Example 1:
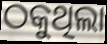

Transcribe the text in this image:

ଠକୁଥିଲା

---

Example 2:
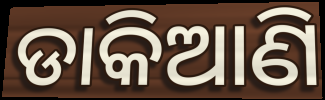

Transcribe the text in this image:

ଡାକିଆଣି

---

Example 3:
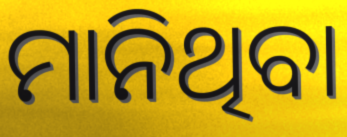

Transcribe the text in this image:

ମାନିଥିବା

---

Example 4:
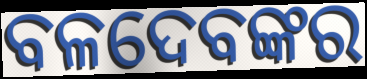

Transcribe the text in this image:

ବଳଦେବଙ୍କର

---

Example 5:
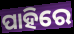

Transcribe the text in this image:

ପାହିରେ